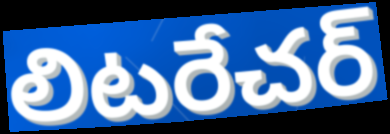
లిటరేచర్